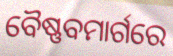
ବୈଷ୍ଣବମାର୍ଗରେ